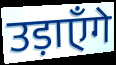
उड़ाएँगे